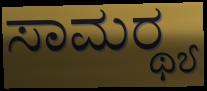
ಸಾಮರ್‍ಥ್ಯ